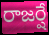
రాజర్షే